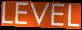
LEVEL